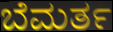
ಬೆಮರ್ತ